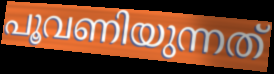
പൂവണിയുന്നത്